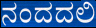
ನಂದದಲಿ